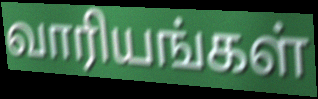
வாரியங்கள்